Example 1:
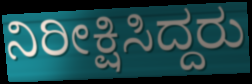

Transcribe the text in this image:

ನಿರೀಕ್ಷಿಸಿದ್ದರು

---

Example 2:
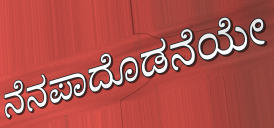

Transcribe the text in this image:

ನೆನಪಾದೊಡನೆಯೇ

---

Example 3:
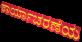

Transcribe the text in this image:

ಕಾರ್ಯಾಚರಣೆಯ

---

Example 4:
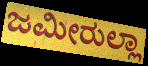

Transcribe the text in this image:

ಜಮೀರುಲ್ಲಾ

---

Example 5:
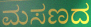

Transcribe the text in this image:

ಮಸಣದ